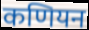
कणियन